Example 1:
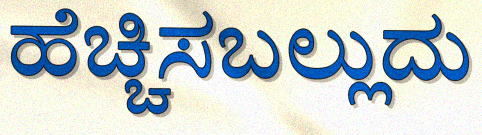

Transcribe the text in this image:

ಹೆಚ್ಚಿಸಬಲ್ಲುದು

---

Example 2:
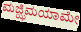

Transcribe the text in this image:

ಮಜ್ಝಿಮಯಾಮೇ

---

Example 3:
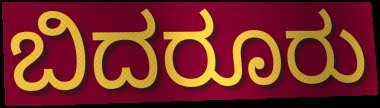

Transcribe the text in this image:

ಬಿದರೂರು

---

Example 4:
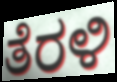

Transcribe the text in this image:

ತೆರಳಿ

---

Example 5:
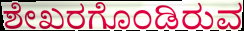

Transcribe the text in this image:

ಶೇಖರಗೊಂಡಿರುವ